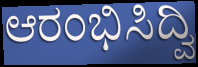
ಆರಂಭಿಸಿದ್ವಿ